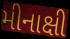
મીનાક્ષી